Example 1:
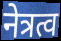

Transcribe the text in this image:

नेत्रत्व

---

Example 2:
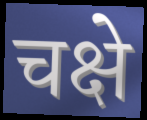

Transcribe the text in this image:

चक्षे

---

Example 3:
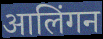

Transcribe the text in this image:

आलिंगन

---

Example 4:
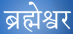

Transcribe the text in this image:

ब्रह्मेश्वर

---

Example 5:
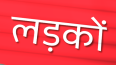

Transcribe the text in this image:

लड़कों